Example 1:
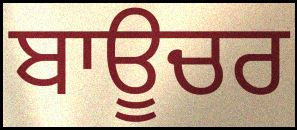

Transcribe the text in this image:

ਬਾਊਚਰ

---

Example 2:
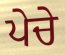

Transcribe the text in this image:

ਪੇਚੇ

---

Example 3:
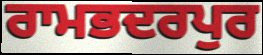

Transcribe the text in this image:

ਰਾਮਭਦਰਪੁਰ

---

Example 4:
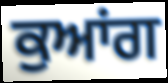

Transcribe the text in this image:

ਕੁਆਂਗ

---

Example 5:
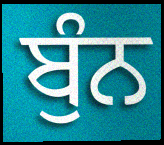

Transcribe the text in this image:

ਬੁੰਨ